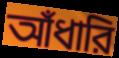
আঁধারি